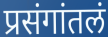
प्रसंगांतलं